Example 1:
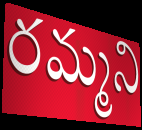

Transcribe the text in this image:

రమ్మని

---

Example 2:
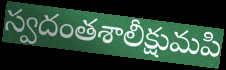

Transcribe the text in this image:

స్వదంతశాలీక్షుమపి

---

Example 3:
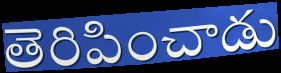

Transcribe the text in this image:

తెరిపించాడు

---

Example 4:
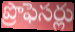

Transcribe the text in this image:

ప్రొఫెసర్లు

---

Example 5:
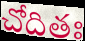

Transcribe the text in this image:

చోదితః